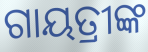
ଗାୟତ୍ରୀଙ୍କ